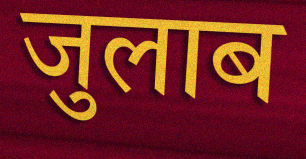
जुलाब